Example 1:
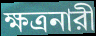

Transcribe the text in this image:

ক্ষত্রনারী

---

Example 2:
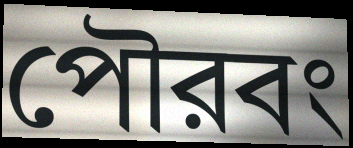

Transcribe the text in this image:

পৌরবং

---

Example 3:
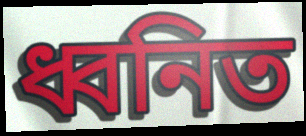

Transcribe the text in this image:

ধ্বনিত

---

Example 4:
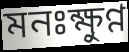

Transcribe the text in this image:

মনঃক্ষুণ্ন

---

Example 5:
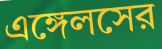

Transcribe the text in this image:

এঙ্গেলসের